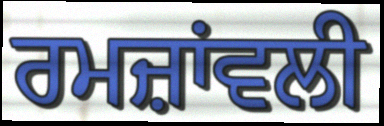
ਰਮਜ਼ਾਂਵਲੀ